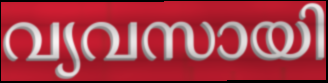
വ്യവസായി